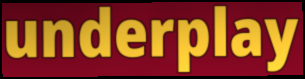
underplay